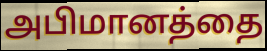
அபிமானத்தை